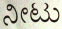
ನೀಟು